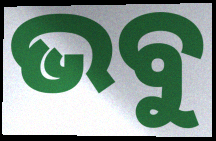
ଭବୁ